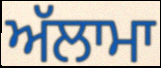
ਅੱਲਾਮਾ